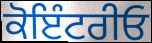
ਕੋਇੰਟਰੀਓ